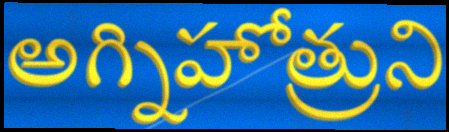
అగ్నిహోత్రుని